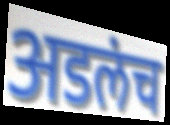
अडलंच